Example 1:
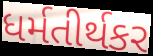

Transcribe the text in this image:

ધર્મતીર્થકર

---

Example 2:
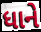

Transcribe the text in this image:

ધાને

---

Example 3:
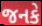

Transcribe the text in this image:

જનકે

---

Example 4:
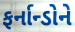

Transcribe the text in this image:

ફર્નાન્ડોને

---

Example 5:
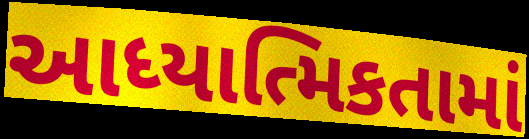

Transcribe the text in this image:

આધ્યાત્મિકતામાં